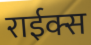
राईक्स